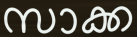
സാക്ക